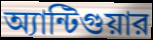
অ্যান্টিগুয়ার